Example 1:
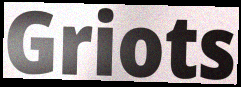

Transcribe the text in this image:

Griots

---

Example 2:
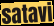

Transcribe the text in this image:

satavi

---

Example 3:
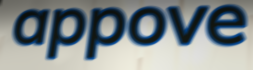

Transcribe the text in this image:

appove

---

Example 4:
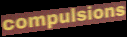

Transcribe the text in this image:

compulsions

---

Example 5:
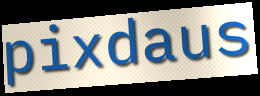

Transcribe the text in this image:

pixdaus